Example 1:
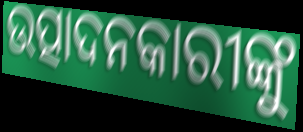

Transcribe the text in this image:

ଉତ୍ପାଦନକାରୀଙ୍କୁ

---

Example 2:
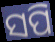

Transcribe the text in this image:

ସପି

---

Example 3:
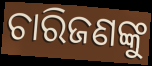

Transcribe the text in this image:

ଚାରିଜଣଙ୍କୁ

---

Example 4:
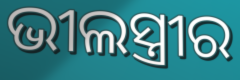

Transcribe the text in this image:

ଭୀଲସ୍ତ୍ରୀର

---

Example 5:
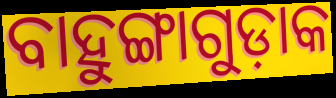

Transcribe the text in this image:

ବାହୁଙ୍ଗାଗୁଡ଼ାକ